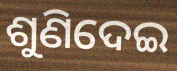
ଶୁଣିଦେଇ